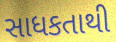
સાધકતાથી